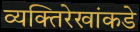
व्यक्तिरेखांकडे